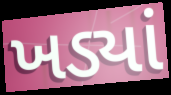
ખડ્યાં